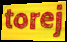
torej